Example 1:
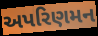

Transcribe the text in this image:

અપરિણમન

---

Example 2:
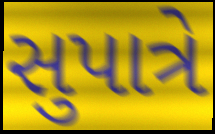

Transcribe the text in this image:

સુપાત્રે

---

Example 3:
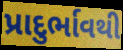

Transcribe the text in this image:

પ્રાદુર્ભાવથી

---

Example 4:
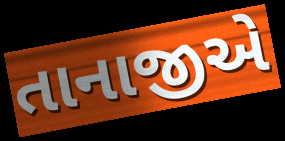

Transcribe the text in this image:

તાનાજીએ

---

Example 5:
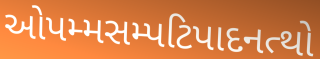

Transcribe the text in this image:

ઓપમ્મસમ્પટિપાદનત્થો